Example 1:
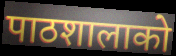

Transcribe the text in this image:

पाठशालाको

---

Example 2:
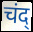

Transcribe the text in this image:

चंद्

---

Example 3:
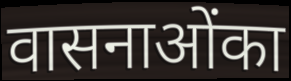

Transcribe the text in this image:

वासनाओंका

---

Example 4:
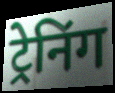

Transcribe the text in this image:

ट्रेनिंग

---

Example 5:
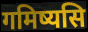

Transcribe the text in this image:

गमिष्यसि